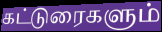
கட்டுரைகளும்